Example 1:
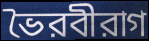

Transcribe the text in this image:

ভৈরবীরাগ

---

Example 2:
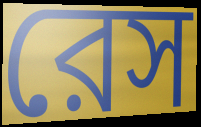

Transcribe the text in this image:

রেস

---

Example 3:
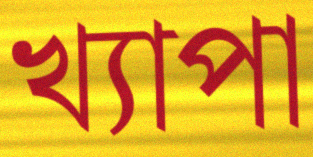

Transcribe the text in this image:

খ্যাপা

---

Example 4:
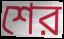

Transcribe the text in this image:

শের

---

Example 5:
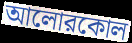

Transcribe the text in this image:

আলোরকোল